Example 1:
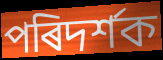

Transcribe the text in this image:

পৰিদৰ্শক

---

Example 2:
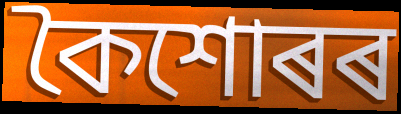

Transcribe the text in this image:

কৈশোৰৰ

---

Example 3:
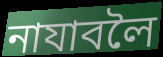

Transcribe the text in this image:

নাযাবলৈ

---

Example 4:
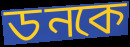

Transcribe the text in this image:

ডনকে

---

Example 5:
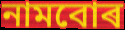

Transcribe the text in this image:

নামবোৰ